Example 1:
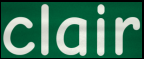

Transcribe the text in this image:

clair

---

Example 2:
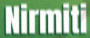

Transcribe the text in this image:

Nirmiti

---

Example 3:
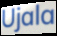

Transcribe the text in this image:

Ujala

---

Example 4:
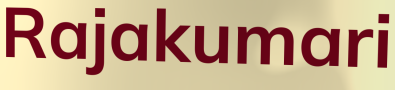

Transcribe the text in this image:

Rajakumari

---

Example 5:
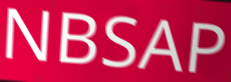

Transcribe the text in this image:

NBSAP